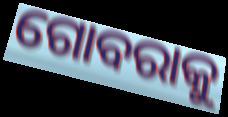
ଗୋବରାକୁ